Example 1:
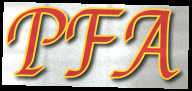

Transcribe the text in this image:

PFA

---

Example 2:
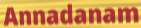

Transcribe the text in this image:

Annadanam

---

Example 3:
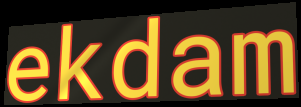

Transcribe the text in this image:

ekdam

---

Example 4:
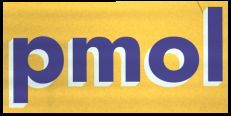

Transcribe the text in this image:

pmol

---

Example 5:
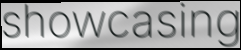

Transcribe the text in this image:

showcasing